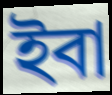
ইবা